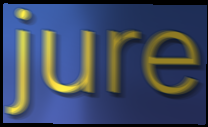
jure